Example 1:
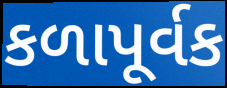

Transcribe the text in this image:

કળાપૂર્વક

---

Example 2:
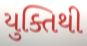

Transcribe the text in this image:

યુક્તિથી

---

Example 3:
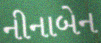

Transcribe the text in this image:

નીનાબેન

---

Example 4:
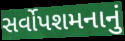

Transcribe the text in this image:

સર્વોપશમનાનું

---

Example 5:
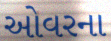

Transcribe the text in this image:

ઓવરના